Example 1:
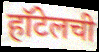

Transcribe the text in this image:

हॉटेलची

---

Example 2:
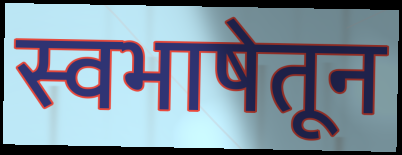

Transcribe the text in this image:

स्वभाषेतून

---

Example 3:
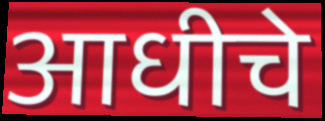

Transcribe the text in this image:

आधीचे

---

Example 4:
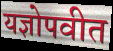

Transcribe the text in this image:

यज्ञोपवीत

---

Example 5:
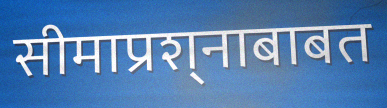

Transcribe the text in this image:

सीमाप्रश्नाबाबत